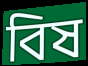
বিষ